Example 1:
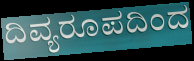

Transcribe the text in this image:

ದಿವ್ಯರೂಪದಿಂದ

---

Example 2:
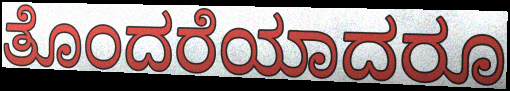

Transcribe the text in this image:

ತೊಂದರೆಯಾದರೂ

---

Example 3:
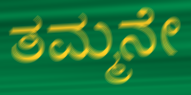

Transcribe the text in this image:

ತಮ್ಮನೇ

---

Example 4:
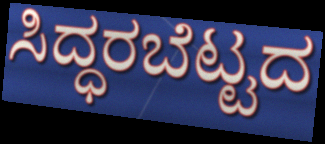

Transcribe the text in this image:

ಸಿದ್ಧರಬೆಟ್ಟದ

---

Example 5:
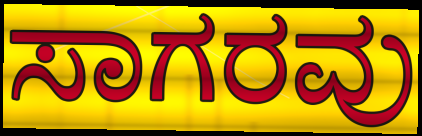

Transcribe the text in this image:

ಸಾಗರವು